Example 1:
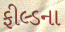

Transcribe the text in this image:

ફીલ્ડના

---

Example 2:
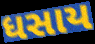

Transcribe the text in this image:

ધસાય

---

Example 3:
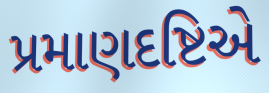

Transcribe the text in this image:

પ્રમાણદષ્ટિએ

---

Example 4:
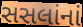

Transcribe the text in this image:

સસલાંનાં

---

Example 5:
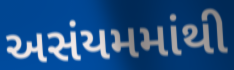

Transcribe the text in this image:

અસંયમમાંથી